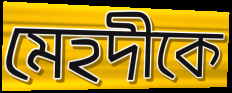
মেহদীকে